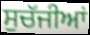
ਸੁਚੱਜੀਆਂ